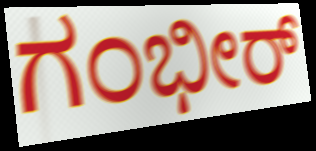
ಗಂಭೀರ್